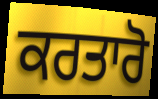
ਕਰਤਾਰੋ